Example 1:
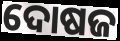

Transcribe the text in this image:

ଦୋଷଜ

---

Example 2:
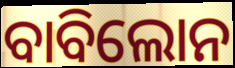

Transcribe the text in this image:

ବାବିଲୋନ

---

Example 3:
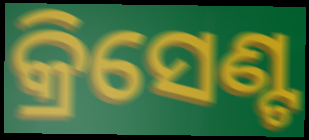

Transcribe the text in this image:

କ୍ରିସେଣ୍ଟ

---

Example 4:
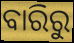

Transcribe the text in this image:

ବାରିରୁ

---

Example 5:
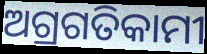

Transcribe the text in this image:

ଅଗ୍ରଗତିକାମୀ